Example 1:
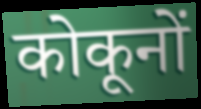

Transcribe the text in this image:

कोकूनों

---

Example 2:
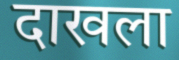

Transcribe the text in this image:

दाखला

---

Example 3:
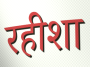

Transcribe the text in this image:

रहीशा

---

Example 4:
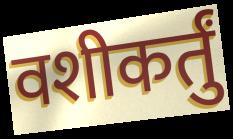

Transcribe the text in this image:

वशीकर्तुं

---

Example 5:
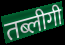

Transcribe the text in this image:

तब्‍लीगी